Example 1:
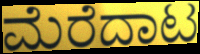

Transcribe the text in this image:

ಮೆರೆದಾಟ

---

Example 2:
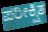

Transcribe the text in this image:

ಪರೀಕ್ಷಿತ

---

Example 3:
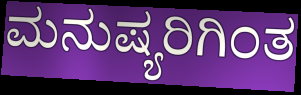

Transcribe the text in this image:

ಮನುಷ್ಯರಿಗಿಂತ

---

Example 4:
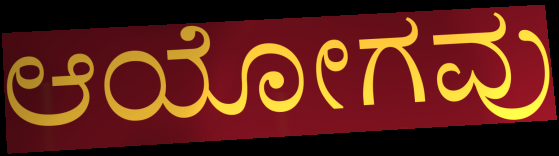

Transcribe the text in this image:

ಆಯೋಗವು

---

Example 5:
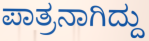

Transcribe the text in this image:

ಪಾತ್ರನಾಗಿದ್ದು